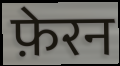
फ़ेरन